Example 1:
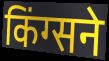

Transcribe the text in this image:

किंग्सने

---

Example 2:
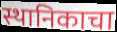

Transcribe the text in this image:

स्थानिकाचा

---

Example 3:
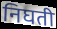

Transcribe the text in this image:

निघती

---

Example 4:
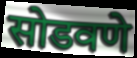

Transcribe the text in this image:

सोडवणे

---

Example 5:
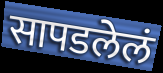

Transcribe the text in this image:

सापडलेलं